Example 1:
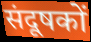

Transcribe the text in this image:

संदूषकों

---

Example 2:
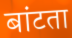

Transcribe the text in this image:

बांटता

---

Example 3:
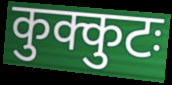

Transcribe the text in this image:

कुक्कुटः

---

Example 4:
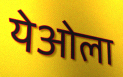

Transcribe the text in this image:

येओला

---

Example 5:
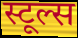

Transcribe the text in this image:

स्टूल्स